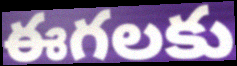
ఈగలకు